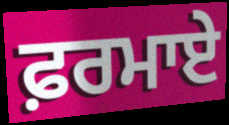
ਫ਼ਰਮਾਏ